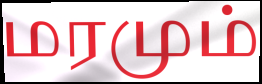
மரமும்